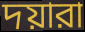
দয়ারা